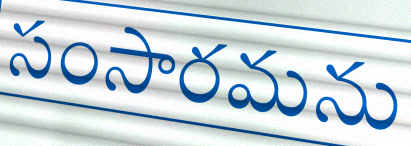
సంసారమను